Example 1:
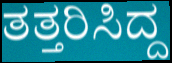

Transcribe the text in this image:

ತತ್ತರಿಸಿದ್ದ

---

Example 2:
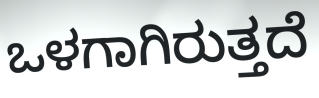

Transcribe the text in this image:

ಒಳಗಾಗಿರುತ್ತದೆ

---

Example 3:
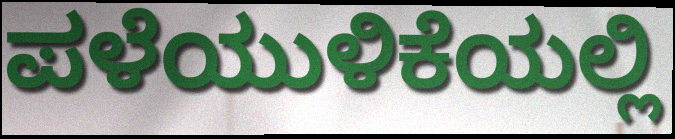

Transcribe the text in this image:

ಪಳೆಯುಳಿಕೆಯಲ್ಲಿ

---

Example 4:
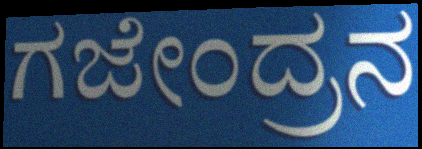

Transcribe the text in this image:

ಗಜೇಂದ್ರನ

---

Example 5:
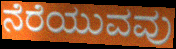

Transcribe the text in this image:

ನೆರೆಯುವವು